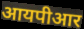
आयपीआर